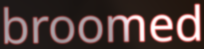
broomed